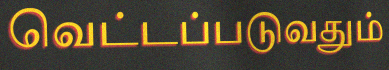
வெட்டப்படுவதும்